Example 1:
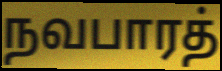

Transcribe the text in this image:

நவபாரத்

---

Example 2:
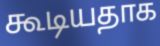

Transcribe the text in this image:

கூடியதாக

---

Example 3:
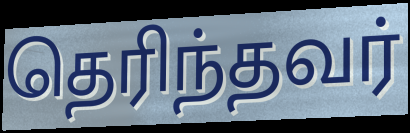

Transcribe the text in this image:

தெரிந்தவர்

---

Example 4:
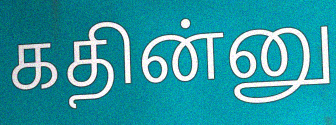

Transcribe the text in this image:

கதின்னு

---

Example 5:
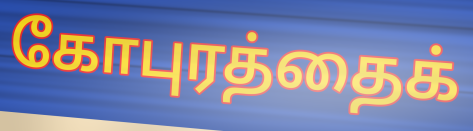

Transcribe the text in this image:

கோபுரத்தைக்